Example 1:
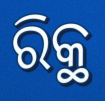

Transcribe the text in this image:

ରିକ୍ଥ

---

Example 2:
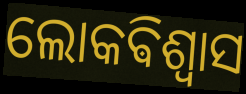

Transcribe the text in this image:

ଲୋକଵିଶ୍ଵାସ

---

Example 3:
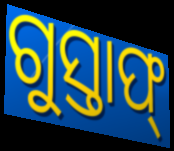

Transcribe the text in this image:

ଗୁସ୍ତାଫ୍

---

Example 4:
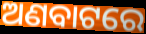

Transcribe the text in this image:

ଅଣବାଟରେ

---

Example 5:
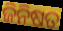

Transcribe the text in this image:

ଜିନିଷତ